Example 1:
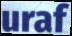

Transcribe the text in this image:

uraf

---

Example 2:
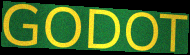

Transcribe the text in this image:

GODOT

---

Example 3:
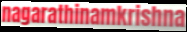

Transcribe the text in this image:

nagarathinamkrishna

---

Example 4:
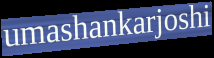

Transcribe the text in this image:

umashankarjoshi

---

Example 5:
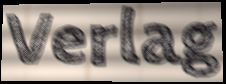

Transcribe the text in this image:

Verlag